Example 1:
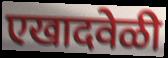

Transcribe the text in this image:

एखादवेळी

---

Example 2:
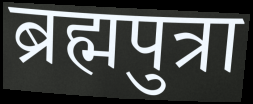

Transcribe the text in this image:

ब्रह्मपुत्रा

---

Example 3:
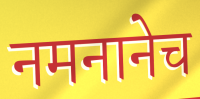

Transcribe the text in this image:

नमनानेच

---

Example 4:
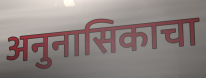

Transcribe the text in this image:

अनुनासिकाचा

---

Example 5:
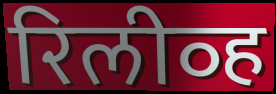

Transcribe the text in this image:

रिलीव्ह